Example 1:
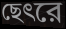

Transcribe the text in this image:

ছেৎরে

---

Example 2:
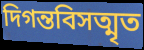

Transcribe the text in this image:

দিগন্তবিসত্মৃত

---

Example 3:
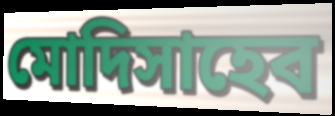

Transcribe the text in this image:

মোদিসাহেব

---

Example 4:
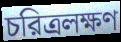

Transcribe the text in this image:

চরিত্রলক্ষণ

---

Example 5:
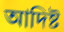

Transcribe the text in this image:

আদিষ্ট